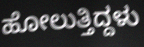
ಹೋಲುತ್ತಿದ್ದಳು